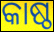
କାଷ୍ଠ